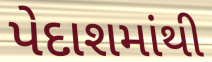
પેદાશમાંથી